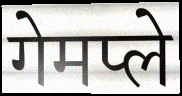
गेमप्ले